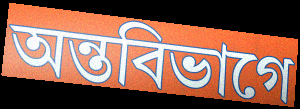
অন্তবিভাগে